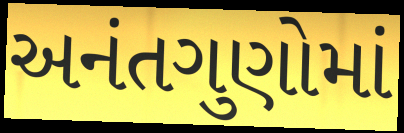
અનંતગુણોમાં